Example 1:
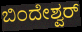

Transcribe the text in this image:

ಬಿಂದೇಶ್ವರ್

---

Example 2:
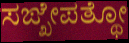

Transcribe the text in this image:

ಸಙ್ಖೇಪತ್ಥೋ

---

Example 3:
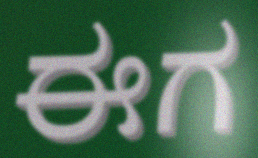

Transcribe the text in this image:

ಈಗ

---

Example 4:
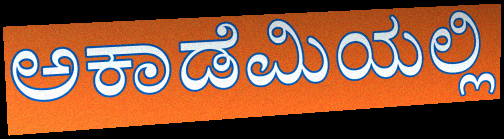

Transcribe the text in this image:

ಅಕಾಡೆಮಿಯಲ್ಲಿ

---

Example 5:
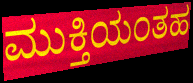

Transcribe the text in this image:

ಮುಕ್ತಿಯಂತಹ